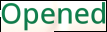
Opened